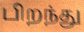
பிறந்து